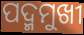
ପଦ୍ମମୁଖୀ